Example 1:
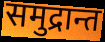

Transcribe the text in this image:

समुद्रान्त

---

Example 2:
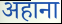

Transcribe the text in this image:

अहाना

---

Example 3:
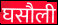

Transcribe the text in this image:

घसौली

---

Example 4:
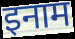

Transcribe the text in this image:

इनाम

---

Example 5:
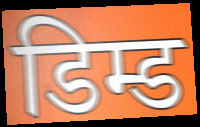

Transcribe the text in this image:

डिम्ड